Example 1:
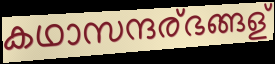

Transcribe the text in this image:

കഥാസന്ദര്ഭങ്ങള്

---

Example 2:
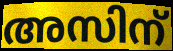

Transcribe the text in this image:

അസിന്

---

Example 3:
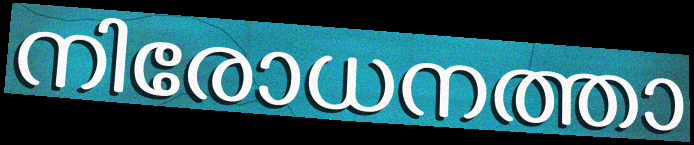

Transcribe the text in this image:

നിരോധനത്താ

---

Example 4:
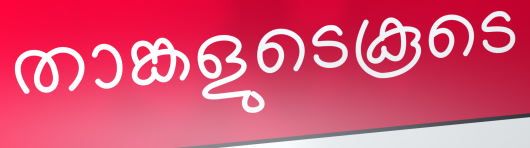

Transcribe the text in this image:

താങ്കളുടെകൂടെ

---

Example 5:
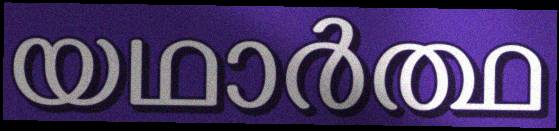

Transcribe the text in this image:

യഥാർത്ഥ